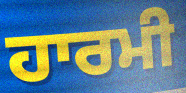
ਹਾਰਮੀ